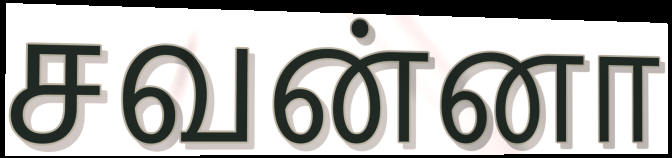
சவன்னா